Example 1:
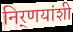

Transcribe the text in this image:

निर्णयांशी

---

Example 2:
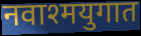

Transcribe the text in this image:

नवाश्मयुगात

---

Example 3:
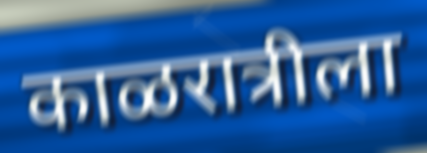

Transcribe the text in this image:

काळरात्रीला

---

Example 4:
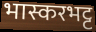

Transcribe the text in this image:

भास्करभट्ट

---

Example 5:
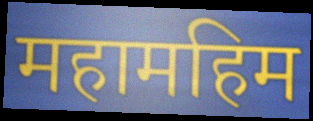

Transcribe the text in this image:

महामहिम